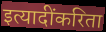
इत्यादींकरिता